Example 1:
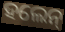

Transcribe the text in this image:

ହଲେନ୍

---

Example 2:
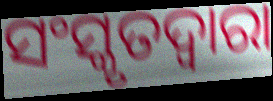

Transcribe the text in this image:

ସଂସ୍କୃତଦ୍ୱାରା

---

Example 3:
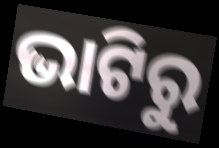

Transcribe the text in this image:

ଭାଟିରୁ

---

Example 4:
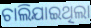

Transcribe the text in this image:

ଚାଲିଯାଇଥିଲା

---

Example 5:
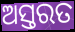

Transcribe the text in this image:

ଅସ୍ତରତ